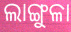
ଲାଙ୍ଗୁଳା